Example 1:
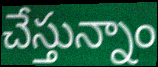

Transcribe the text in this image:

చేస్తున్నాం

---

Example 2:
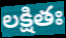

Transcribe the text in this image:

లక్షితః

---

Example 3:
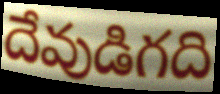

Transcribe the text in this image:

దేవుడిగది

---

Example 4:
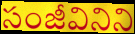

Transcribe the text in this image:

సంజీవినిని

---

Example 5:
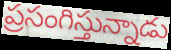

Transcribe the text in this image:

ప్రసంగిస్తున్నాడు